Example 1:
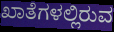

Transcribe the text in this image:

ಖಾತೆಗಳಲ್ಲಿರುವ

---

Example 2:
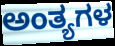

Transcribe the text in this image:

ಅಂತ್ಯಗಳ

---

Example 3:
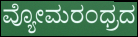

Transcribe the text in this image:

ವ್ಯೋಮರಂಧ್ರದ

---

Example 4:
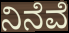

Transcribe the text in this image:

ನಿನೆವೆ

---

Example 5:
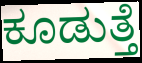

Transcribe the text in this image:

ಕೂಡುತ್ತೆ